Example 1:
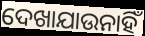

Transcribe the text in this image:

ଦେଖାଯାଉନାହିଁ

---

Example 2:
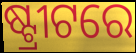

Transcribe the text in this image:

ଷ୍ଟ୍ରୀଟରେ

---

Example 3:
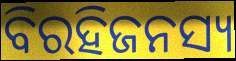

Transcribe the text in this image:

ବିରହିଜନସ୍ୟ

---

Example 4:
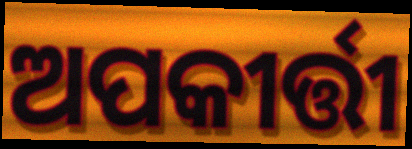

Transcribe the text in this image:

ଅପକୀର୍ତ୍ତୀ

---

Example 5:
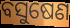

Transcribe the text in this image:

ବସୁଷେଣ